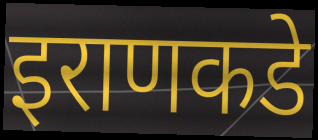
इराणकडे